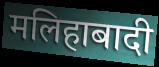
मलिहाबादी